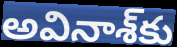
అవినాశ్‌కు